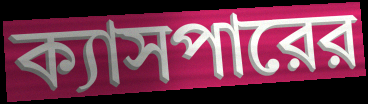
ক্যাসপারের